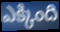
ఎక్కింది